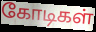
கோடிகள்